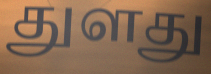
துளது